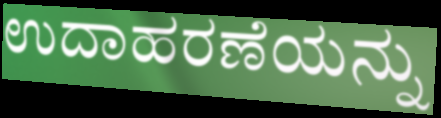
ಉದಾಹರಣೆಯನ್ನು